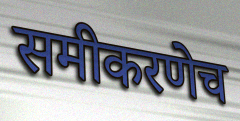
समीकरणेच